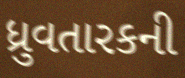
ધ્રુવતારકની